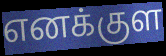
எனக்குள